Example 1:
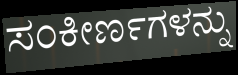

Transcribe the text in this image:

ಸಂಕೀರ್ಣಗಳನ್ನು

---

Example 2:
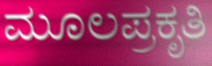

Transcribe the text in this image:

ಮೂಲಪ್ರಕೃತಿ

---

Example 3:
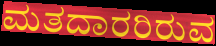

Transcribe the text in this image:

ಮತದಾರರಿರುವ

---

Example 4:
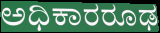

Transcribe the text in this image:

ಅಧಿಕಾರರೂಢ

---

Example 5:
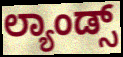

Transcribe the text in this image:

ಲ್ಯಾಂಡ್ಸ್